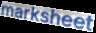
marksheet